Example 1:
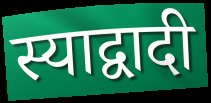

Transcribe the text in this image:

स्याद्वादी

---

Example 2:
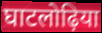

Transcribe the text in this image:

घाटलोढ़िया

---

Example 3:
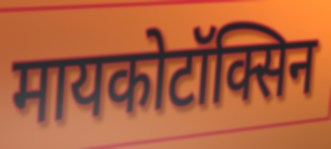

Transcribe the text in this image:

मायकोटॉक्सिन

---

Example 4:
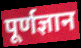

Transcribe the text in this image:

पूर्णज्ञान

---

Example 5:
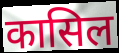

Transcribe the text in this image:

कासिल